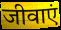
जीवाएं